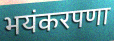
भयंकरपणा